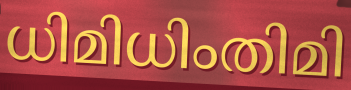
ധിമിധിംതിമി